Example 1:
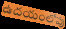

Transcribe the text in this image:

ఉదయంలోపు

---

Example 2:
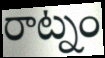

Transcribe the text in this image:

రాట్నం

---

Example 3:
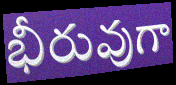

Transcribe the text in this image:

భీరువుగా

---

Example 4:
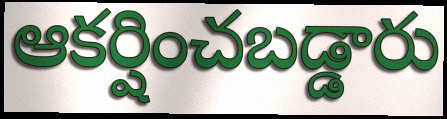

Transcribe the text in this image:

ఆకర్షించబడ్డారు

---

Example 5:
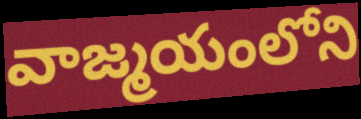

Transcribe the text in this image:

వాజ్మయంలోని